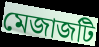
মেজাজটি